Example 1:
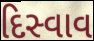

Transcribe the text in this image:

દિસ્વાવ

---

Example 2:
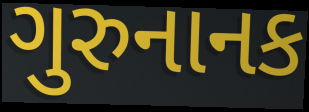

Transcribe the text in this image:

ગુરુનાનક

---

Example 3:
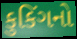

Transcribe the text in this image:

કુકિંગનો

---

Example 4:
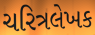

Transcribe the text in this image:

ચરિત્રલેખક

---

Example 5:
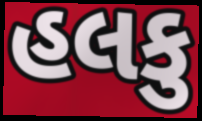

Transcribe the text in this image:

હલકુ